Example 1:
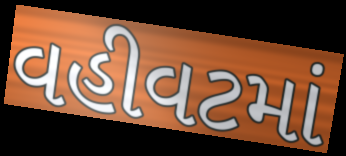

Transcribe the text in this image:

વહીવટમાં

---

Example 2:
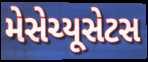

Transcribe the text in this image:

મેસેચ્યૂસેટસ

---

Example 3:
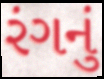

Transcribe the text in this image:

રંગનું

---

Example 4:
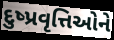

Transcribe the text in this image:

દુષ્પ્રવૃત્તિઓને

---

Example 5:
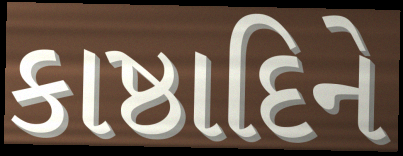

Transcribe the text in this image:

કાષ્ઠાદિને